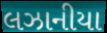
લઝાનીયા